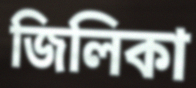
জিলিকা